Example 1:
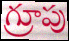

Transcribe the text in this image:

గ్రూపు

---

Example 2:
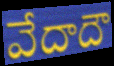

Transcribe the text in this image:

వేదాదౌ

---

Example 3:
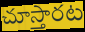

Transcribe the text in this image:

చూస్తారట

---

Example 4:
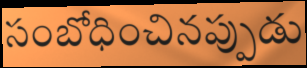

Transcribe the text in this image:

సంబోధించినప్పుడు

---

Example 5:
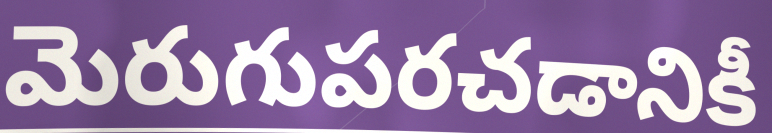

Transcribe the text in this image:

మెరుగుపరచడానికీ